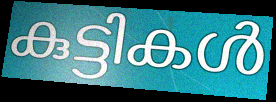
കുട്ടികൾ